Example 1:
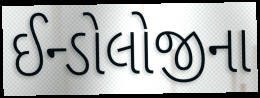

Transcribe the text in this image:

ઈન્ડોલોજીના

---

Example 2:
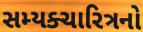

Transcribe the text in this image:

સમ્યક્ચારિત્રનો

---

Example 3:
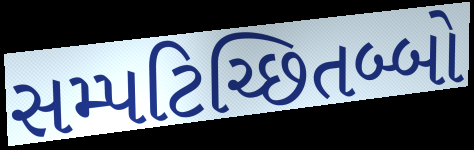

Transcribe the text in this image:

સમ્પટિચ્છિતબ્બો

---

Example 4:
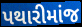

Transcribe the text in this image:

પથારીમાંજ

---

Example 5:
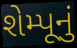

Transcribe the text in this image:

શેમ્પૂનું